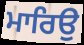
ਮਾਰਿਉ